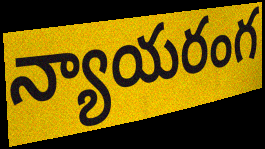
న్యాయరంగ